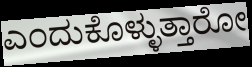
ಎಂದುಕೊಳ್ಳುತ್ತಾರೋ